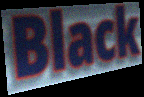
Black